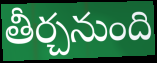
తీర్చనుంది